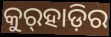
କୁର୍‍ହାଡ଼ିର